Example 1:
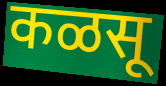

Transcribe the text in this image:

कळसू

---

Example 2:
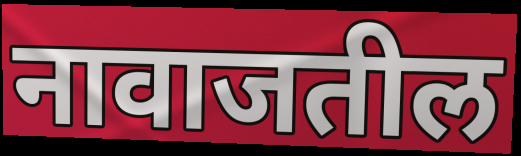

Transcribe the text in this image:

नावाजतील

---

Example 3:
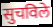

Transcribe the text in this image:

सुचविले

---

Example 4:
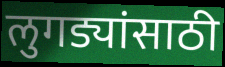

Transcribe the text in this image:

लुगड्यांसाठी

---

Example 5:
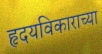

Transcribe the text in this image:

हृदयविकाराच्या